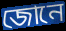
জোনে